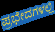
ಪ್ರಭೇದಗಳಲ್ಲಿ